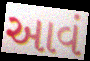
આવં